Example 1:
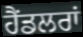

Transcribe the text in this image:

ਹੈਂਡਲਰਾਂ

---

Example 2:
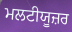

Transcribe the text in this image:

ਮਲਟੀਯੂਜ਼ਰ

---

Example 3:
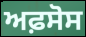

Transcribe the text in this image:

ਅਫ਼ਸੋਸ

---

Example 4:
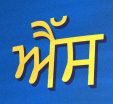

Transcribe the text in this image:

ਐੱਸ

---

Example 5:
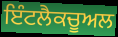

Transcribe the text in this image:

ਇੰਟਲੈਕਚੂਅਲ